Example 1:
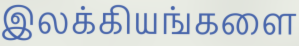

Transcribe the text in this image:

இலக்கியங்களை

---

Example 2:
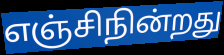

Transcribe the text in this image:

எஞ்சிநின்றது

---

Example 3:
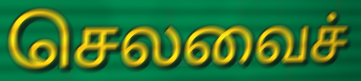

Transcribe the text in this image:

செலவைச்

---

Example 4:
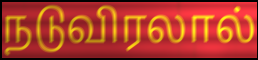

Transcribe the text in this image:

நடுவிரலால்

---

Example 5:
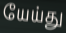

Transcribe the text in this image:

யேய்து